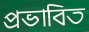
প্ৰভাবিত